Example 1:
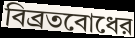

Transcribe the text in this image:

বিব্রতবোধের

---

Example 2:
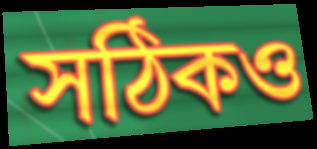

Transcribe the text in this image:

সঠিকও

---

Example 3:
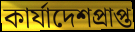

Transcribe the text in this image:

কার্যাদেশপ্রাপ্ত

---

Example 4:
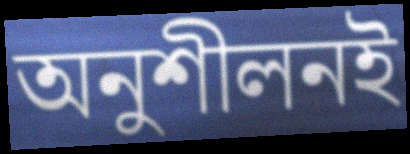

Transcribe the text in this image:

অনুশীলনই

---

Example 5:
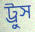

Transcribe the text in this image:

ট্রুস